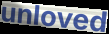
unloved